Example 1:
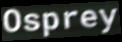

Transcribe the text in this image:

Osprey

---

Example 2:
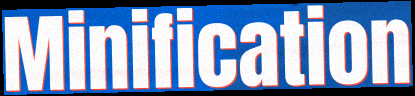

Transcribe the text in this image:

Minification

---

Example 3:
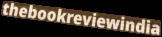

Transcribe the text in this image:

thebookreviewindia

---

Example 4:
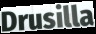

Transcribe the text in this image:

Drusilla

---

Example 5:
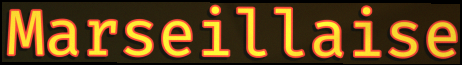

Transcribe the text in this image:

Marseillaise